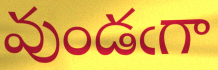
వుండఁగా